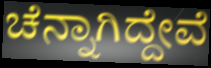
ಚೆನ್ನಾಗಿದ್ದೇವೆ